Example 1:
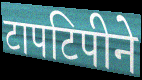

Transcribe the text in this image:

टापटिपीने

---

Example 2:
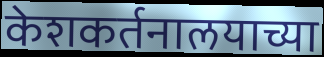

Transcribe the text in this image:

केशकर्तनालयाच्या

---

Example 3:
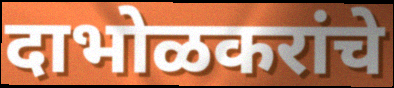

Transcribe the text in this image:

दाभोळकरांचे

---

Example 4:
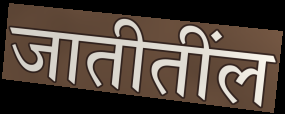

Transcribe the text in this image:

जातीतींल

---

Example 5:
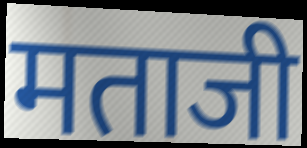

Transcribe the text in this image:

मताजी